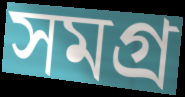
সমগ্র